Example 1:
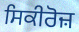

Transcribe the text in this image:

ਸਿਕੀਰੋਜ਼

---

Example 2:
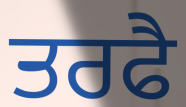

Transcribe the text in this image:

ਤਰਫੈ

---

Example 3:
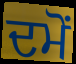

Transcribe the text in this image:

ਦਮੋਂ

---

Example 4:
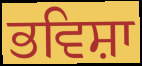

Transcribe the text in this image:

ਭਵਿਸ਼ਾ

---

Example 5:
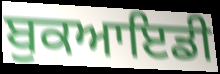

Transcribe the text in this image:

ਬੁਕਆਇਡੀ